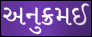
અનુક્રમઈ